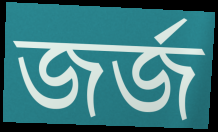
জর্জ